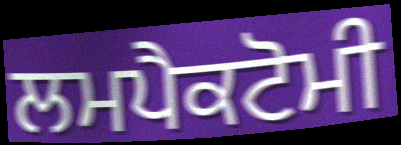
ਲਮਪੈਕਟੋਮੀ